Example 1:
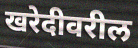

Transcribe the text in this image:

खरेदीवरील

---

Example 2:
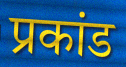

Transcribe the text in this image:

प्रकांड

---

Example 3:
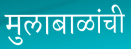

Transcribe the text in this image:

मुलाबाळांची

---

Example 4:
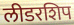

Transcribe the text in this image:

लीडरशिप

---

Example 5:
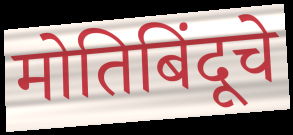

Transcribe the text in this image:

मोतिबिंदूचे